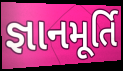
જ્ઞાનમૂર્તિ